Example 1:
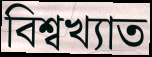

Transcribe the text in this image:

বিশ্বখ্যাত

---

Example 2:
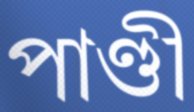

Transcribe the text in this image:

পাণ্ডী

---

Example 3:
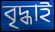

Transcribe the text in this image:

বৃদ্ধাই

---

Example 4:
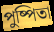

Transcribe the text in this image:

পুষ্পিতা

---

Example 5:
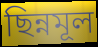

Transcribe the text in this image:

ছিন্নমূল